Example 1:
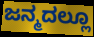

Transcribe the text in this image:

ಜನ್ಮದಲ್ಲೂ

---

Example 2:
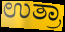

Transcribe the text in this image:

ಉತ್ರಾ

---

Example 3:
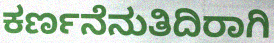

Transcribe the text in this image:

ಕರ್ಣನೆನುತಿದಿರಾಗಿ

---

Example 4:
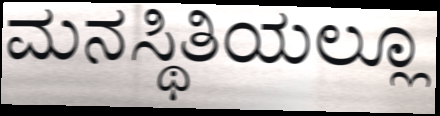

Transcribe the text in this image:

ಮನಸ್ಥಿತಿಯಲ್ಲೂ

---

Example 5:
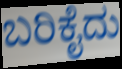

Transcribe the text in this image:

ಬರಿಕೈದು